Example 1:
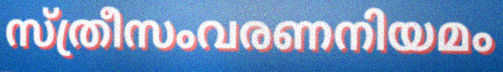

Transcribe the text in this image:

സ്ത്രീസംവരണനിയമം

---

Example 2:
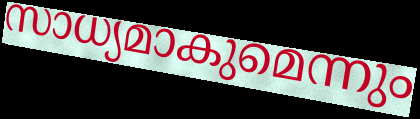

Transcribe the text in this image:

സാധ്യമാകുമെന്നും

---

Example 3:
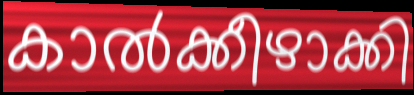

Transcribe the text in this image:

കാൽക്കീഴാക്കി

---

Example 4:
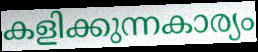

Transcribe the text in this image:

കളിക്കുന്നകാര്യം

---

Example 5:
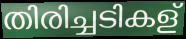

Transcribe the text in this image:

തിരിച്ചടികള്